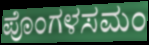
ಪೊಂಗಳಸಮಂ